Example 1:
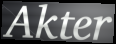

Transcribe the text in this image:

Akter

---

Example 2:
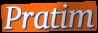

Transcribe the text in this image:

Pratim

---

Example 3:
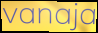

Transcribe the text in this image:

vanaja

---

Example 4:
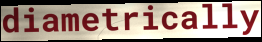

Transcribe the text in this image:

diametrically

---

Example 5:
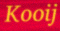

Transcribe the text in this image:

Kooij